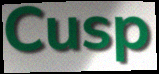
Cusp